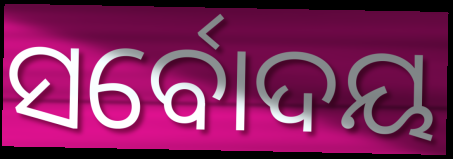
ସର୍ବୋଦୟ